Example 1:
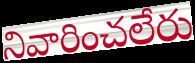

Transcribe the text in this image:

నివారించలేరు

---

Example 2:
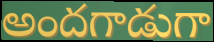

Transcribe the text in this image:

అందగాడుగా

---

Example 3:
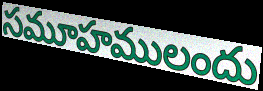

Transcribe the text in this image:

సమూహములందు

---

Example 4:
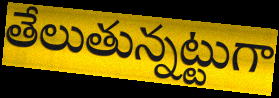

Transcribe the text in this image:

తేలుతున్నట్టుగా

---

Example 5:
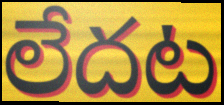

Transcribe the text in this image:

లేదట